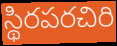
స్థిరపరచిరి